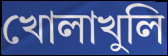
খোলাখুলি